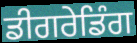
ਡੀਗਰੇਡਿੰਗ